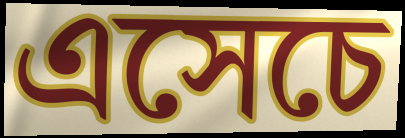
এসেচে